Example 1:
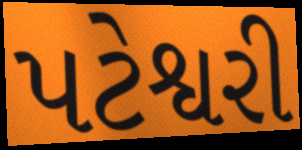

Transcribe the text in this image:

પટેશ્વરી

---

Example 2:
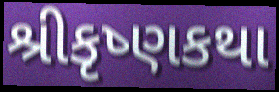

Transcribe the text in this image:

શ્રીકૃષ્ણકથા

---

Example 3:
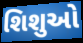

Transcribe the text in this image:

શિશુઓ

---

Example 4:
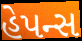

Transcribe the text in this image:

હેપન્સ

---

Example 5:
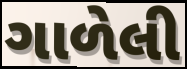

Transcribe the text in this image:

ગાળેલી